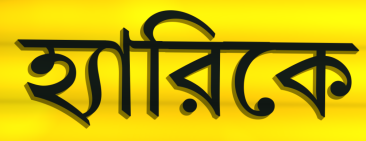
হ্যারিকে